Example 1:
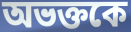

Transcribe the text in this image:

অভক্তকে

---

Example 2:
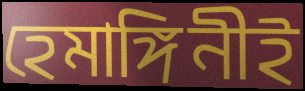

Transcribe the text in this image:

হেমাঙ্গিনীই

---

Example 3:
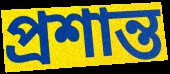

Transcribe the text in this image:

প্রশান্ত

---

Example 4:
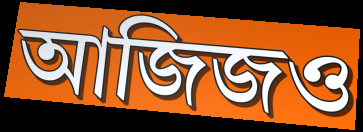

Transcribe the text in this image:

আজিজও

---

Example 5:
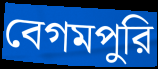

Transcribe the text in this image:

বেগমপুরি